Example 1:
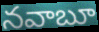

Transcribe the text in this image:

నవాబూ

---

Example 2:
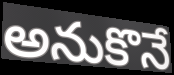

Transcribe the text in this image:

అనుకొనే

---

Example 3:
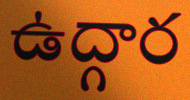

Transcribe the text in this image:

ఉద్గార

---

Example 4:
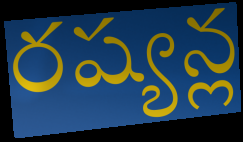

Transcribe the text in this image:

రష్యన్ల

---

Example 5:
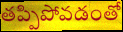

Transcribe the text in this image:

తప్పిపోవడంతో